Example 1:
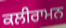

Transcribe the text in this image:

ਕਲੀਰਾਮਨ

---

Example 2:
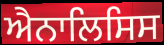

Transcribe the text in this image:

ਐਨਾਲਿਸਿਸ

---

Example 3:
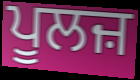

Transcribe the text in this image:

ਪੂਲਜ਼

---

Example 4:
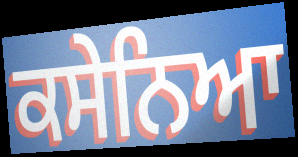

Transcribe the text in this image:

ਕਸੇਨਿਆ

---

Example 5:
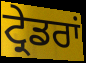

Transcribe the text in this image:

ਟ੍ਰੇਡਰਾਂ